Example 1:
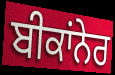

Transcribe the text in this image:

ਬੀਕਾਂਨੇਰ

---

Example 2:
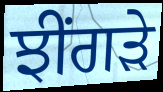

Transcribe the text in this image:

ਝੀਂਗੜੇ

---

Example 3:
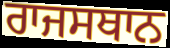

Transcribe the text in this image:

ਰਾਜਸਥਾਨ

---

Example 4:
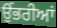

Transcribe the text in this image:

ਉੱਭਰੀਆਂ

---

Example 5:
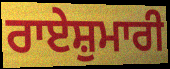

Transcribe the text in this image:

ਰਾਏਸ਼ੁਮਾਰੀ